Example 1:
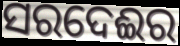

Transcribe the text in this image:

ସରଦେଈର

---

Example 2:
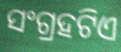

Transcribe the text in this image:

ସଂଗ୍ରହଟିଏ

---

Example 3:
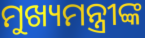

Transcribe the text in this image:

ମୁଖ୍ୟମନ୍ତ୍ରୀଙ୍କ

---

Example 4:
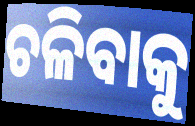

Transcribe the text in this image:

ଚଳିବାକୁ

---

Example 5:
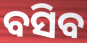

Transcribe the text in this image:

ବସିବ